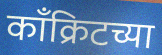
काँक्रिटच्या